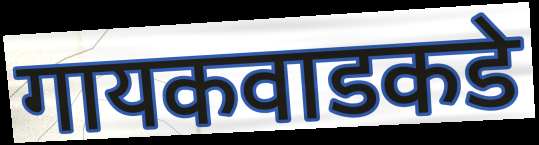
गायकवाडकडे